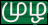
முழ